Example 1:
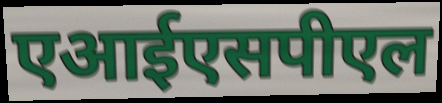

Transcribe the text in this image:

एआईएसपीएल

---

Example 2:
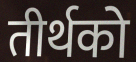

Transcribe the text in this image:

तीर्थको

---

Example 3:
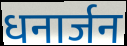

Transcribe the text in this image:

धनार्जन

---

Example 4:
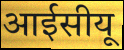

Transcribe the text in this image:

आईसीयू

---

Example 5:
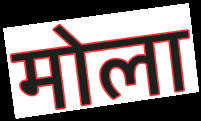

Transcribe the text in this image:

मोला